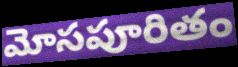
మోసపూరితం